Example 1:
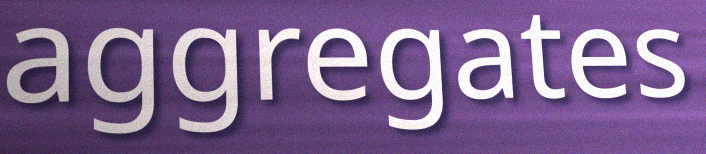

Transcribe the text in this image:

aggregates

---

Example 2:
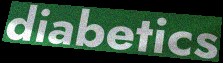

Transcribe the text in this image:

diabetics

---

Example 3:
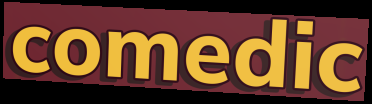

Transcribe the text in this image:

comedic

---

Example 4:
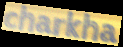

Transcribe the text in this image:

charkha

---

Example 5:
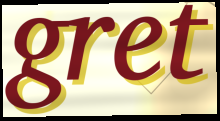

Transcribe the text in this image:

gret